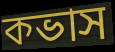
কভাস